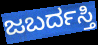
ಜಬರ್ದಸ್ತಿ